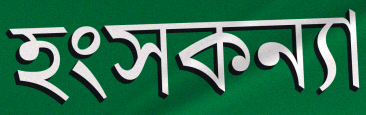
হংসকন্যা